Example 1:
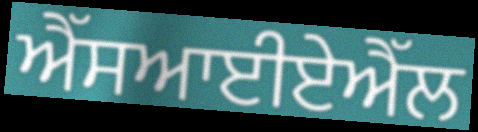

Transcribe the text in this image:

ਐੱਸਆਈਏਐੱਲ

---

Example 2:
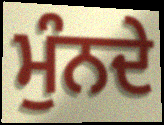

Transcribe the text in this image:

ਮੁੰਨਦੇ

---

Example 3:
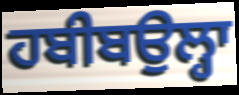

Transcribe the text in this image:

ਹਬੀਬਉਲ੍ਹਾ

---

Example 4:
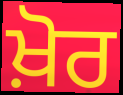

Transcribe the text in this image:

ਖ਼ੋਰ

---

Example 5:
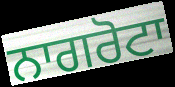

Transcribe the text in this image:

ਨਾਗਰੋਟਾ